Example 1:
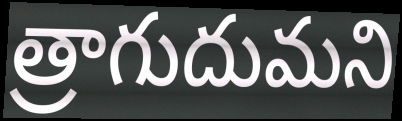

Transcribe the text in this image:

త్రాగుదుమని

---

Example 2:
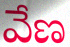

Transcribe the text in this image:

వేణ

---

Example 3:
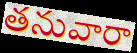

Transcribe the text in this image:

తనువారా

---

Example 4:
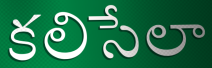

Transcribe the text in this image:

కలిసేలా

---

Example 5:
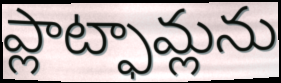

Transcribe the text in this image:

ప్లాట్ఫామ్లను